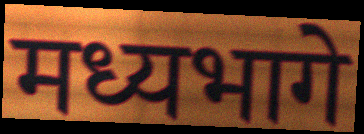
मध्यभागे